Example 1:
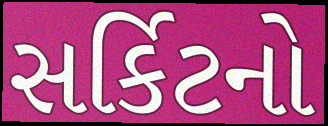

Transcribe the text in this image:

સર્કિટનો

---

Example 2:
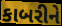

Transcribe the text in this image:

કાબરીને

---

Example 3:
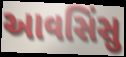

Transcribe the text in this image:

આવસિંસુ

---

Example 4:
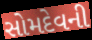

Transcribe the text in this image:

સોમદેવની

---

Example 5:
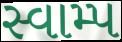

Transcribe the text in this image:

સ્વામ્પ